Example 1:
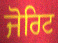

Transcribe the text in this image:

ਜੋਰਿਟ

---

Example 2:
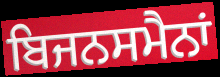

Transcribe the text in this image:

ਬਿਜਨਸਮੈਨਾਂ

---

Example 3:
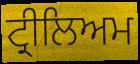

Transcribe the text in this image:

ਟ੍ਰੀਲਿਅਮ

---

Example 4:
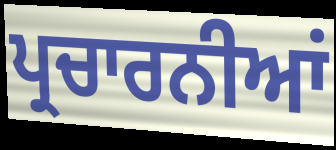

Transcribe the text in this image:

ਪ੍ਰਚਾਰਨੀਆਂ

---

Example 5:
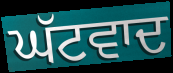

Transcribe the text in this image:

ਘੱਟਵਾਦ